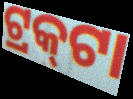
ଟ୍ରକ୍‌ଟା